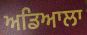
ਅਡਿਆਲਾ